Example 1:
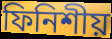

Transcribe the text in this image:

ফিনিশীয়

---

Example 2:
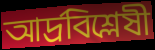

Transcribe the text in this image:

আর্দ্রবিশ্লেষী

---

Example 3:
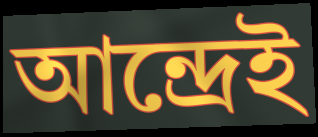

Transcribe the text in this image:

আন্দ্রেই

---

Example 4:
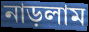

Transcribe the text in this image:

নাড়লাম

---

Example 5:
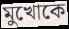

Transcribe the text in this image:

মুখোকে